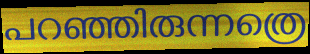
പറഞ്ഞിരുന്നത്രെ